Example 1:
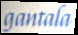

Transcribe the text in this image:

gantala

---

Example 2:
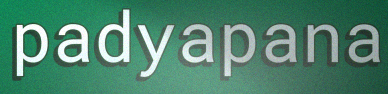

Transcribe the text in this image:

padyapana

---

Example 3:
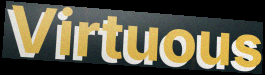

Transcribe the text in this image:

Virtuous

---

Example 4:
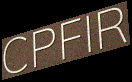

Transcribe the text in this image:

CPFIR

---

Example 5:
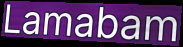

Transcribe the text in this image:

Lamabam